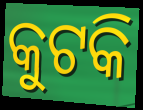
କୁଟକି